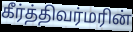
கீர்த்திவர்மரின்